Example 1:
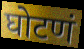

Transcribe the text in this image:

घोटणं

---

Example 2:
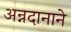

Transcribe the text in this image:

अन्नदानाने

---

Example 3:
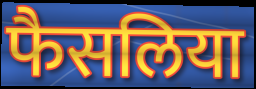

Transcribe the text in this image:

फैसलिया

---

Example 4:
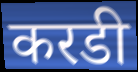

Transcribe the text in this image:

करडी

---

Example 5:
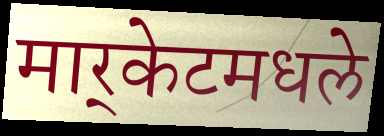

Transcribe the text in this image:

मार्केटमधले